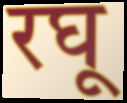
रघू